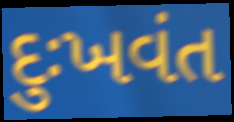
દુઃખવંત